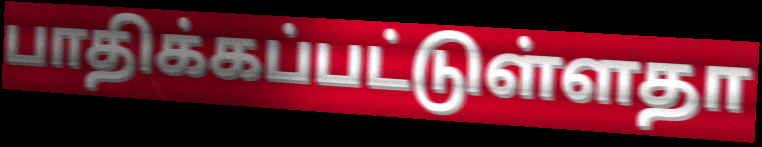
பாதிக்கப்பட்டுள்ளதா